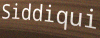
Siddiqui